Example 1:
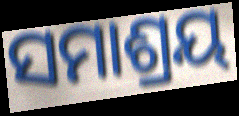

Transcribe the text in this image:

ସମାଶ୍ରୟ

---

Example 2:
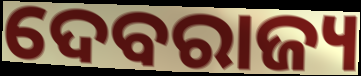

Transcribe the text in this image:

ଦେବରାଜ୍ୟ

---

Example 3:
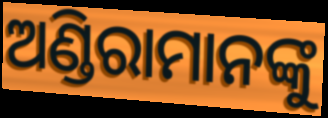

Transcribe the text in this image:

ଅଣ୍ଡିରାମାନଙ୍କୁ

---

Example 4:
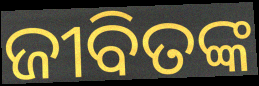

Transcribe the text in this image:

ଜୀବିତଙ୍କ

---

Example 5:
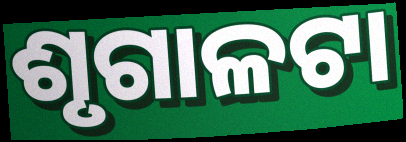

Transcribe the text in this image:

ଶୃଗାଳଟା